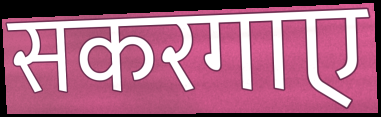
सकरगाए